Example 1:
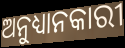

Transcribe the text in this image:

ଅନୁଧ୍ୟାନକାରୀ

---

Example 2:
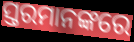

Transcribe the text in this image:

ସ୍ତରମାନଙ୍କରେ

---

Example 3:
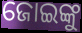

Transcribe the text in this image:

ଜୋଇଙ୍କୁ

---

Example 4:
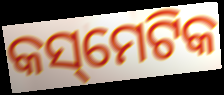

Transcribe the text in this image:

କସ୍‌ମେଟିକ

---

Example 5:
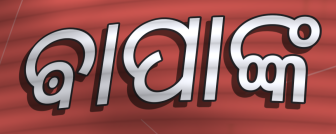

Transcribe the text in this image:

ଵାପାଙ୍କ